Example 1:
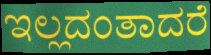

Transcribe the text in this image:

ಇಲ್ಲದಂತಾದರೆ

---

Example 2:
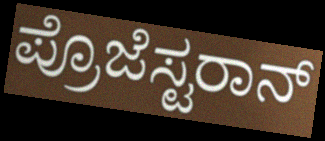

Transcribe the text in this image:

ಪ್ರೊಜೆಸ್ಟರಾನ್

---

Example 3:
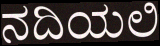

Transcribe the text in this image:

ನದಿಯಲಿ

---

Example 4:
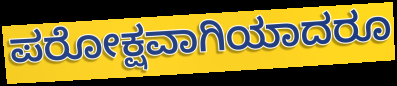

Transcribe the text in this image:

ಪರೋಕ್ಷವಾಗಿಯಾದರೂ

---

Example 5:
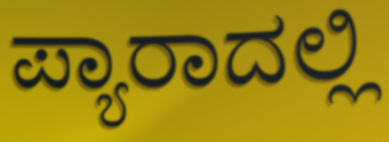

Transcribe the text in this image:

ಪ್ಯಾರಾದಲ್ಲಿ